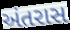
અંતરાસ